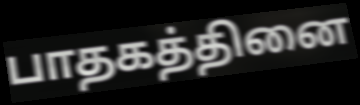
பாதகத்தினை